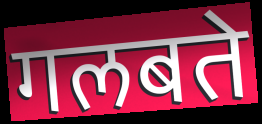
गलबते